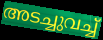
അടച്ചുവച്ച്